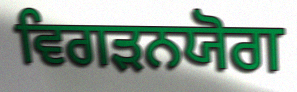
ਵਿਗੜਨਯੋਗ